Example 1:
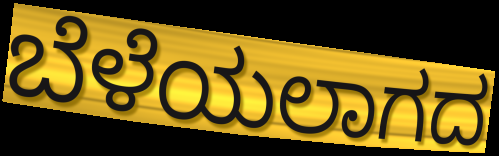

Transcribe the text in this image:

ಬೆಳೆಯಲಾಗದ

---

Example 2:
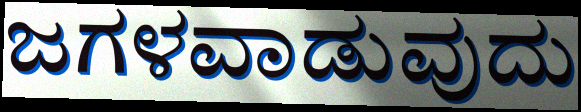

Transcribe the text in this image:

ಜಗಳವಾಡುವುದು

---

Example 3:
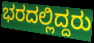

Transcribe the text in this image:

ಭರದಲ್ಲಿದ್ದರು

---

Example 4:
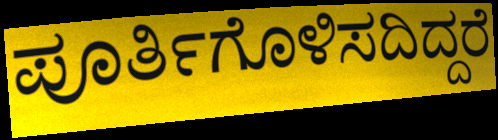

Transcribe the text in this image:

ಪೂರ್ತಿಗೊಳಿಸದಿದ್ದರೆ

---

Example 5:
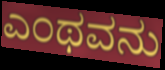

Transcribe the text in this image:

ಎಂಥವನು